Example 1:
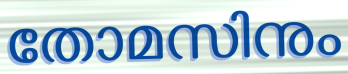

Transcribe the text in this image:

തോമസിനും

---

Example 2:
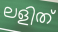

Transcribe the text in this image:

ലളിത്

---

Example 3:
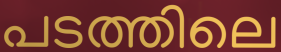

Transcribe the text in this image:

പടത്തിലെ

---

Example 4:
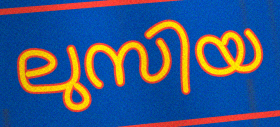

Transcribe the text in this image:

ലുസിയ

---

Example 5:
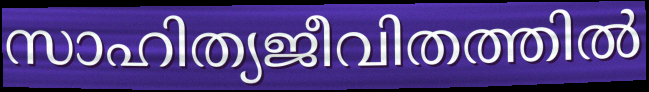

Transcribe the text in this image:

സാഹിത്യജീവിതത്തിൽ